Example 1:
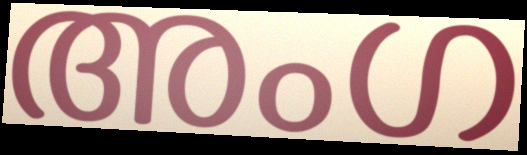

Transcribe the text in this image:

അംഗ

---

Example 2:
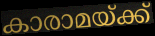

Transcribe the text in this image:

കാരാമയ്ക്ക്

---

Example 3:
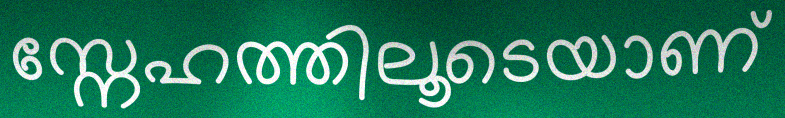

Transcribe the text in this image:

സ്നേഹത്തിലൂടെയാണ്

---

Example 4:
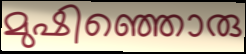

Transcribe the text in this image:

മുഷിഞ്ഞൊരു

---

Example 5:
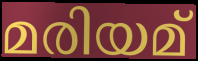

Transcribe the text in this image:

മരിയമ്